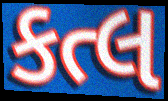
કત્લ